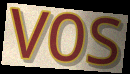
VOS